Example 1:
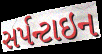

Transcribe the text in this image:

સર્પન્ટાઇન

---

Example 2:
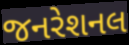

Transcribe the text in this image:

જનરેશનલ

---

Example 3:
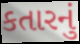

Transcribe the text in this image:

કતારનું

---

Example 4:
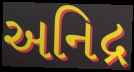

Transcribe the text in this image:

અનિદ્ર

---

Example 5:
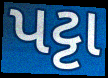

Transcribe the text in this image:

પટ્ટા